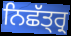
ਨਿਛੱਤ੍ਰ੍ਰ